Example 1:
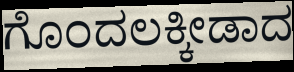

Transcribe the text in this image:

ಗೊಂದಲಕ್ಕೀಡಾದ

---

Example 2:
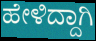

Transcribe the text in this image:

ಹೇಳಿದ್ದಾಗಿ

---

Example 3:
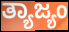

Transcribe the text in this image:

ತ್ಯಾಜ್ಯಂ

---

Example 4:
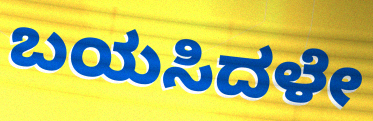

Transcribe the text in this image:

ಬಯಸಿದಳೇ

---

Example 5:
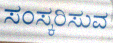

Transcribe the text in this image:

ಸಂಸ್ಕರಿಸುವ